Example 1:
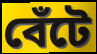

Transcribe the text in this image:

বেঁটে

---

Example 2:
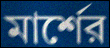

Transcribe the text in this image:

মার্শের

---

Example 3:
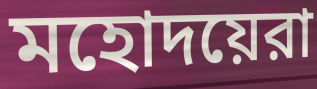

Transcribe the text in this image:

মহোদয়েরা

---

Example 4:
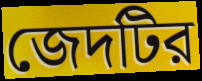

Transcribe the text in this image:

জেদটির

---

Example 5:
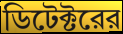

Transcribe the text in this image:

ডিটেক্টরের